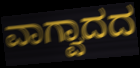
ವಾಗ್ವಾದದ